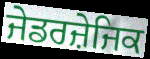
ਜੇਡਰਜ਼ੇਜਿਕ